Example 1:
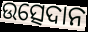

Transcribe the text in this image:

ଉତ୍ସେଦାନ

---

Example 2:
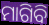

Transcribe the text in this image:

ମାଗିବି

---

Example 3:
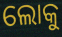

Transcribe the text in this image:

ଲୋକୁ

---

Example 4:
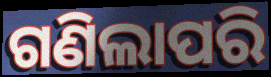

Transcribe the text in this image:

ଗଣିଲାପରି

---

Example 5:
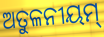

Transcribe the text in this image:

ଅତୁଳନୀୟମ୍